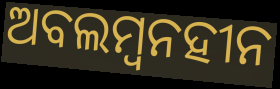
ଅବଲମ୍ବନହୀନ